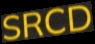
SRCD